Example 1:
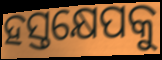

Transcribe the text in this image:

ହସ୍ତକ୍ଷେପକୁ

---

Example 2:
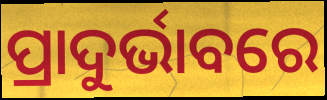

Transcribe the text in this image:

ପ୍ରାଦୁର୍ଭାବରେ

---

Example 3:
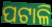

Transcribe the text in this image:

ପଟାଳି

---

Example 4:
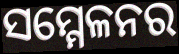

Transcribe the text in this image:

ସମ୍ମେଳନର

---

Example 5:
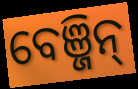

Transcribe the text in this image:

ବେଞ୍ଜିନ୍